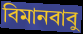
বিমানবাবু